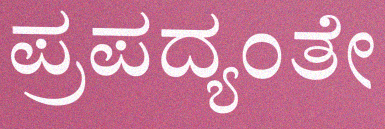
ಪ್ರಪದ್ಯಂತೇ